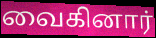
வைகினார்